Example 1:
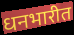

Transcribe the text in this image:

धनभारीत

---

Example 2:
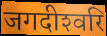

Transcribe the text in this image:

जगदीश्वरि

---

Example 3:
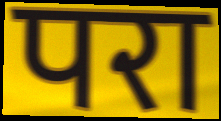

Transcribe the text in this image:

परा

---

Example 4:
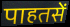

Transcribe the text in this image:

पाहतसें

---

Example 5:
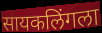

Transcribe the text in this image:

सायकलिंगला